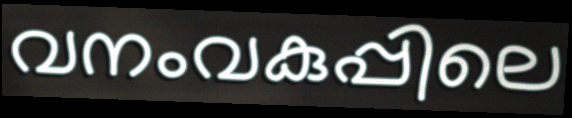
വനംവകുപ്പിലെ